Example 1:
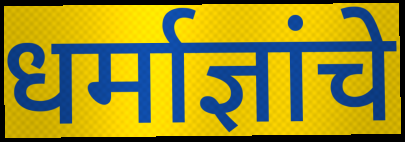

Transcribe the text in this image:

धर्माज्ञांचे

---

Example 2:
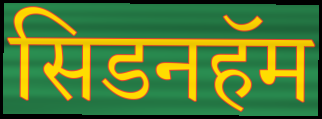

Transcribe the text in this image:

सिडनहॅम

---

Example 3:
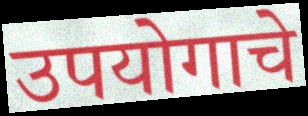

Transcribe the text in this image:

उपयोगाचे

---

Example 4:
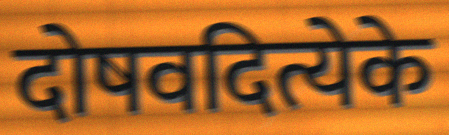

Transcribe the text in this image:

दोषवदित्येके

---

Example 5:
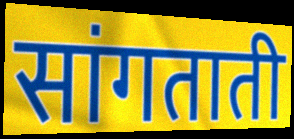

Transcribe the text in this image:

सांगताती